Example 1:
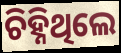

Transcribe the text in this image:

ଚିହ୍ନିଥିଲେ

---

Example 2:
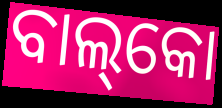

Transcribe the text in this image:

ବାଲ୍‌କୋ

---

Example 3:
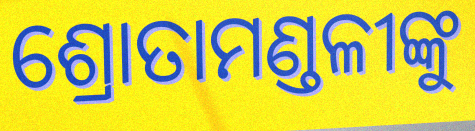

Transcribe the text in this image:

ଶ୍ରୋତାମଣ୍ଡଳୀଙ୍କୁ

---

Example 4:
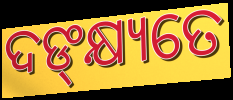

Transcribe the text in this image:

ଦଙ୍କ୍ଷ୍ଯତେ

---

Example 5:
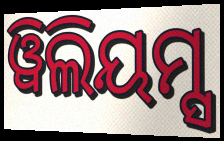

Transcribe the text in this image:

ୱିଲିୟମ୍ସ